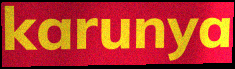
karunya